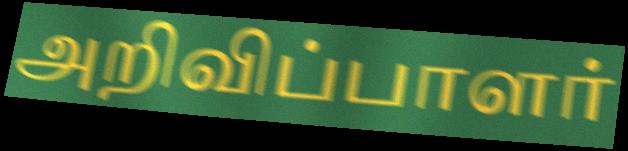
அறிவிப்பாளர்